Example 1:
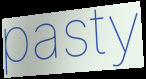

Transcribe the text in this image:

pasty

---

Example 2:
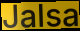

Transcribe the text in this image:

Jalsa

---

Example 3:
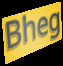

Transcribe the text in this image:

Bheg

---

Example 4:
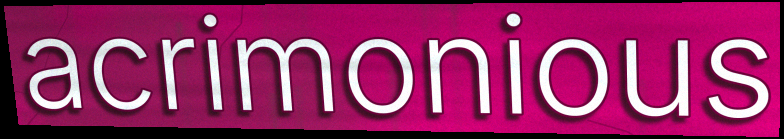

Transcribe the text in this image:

acrimonious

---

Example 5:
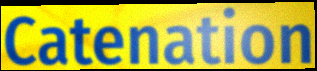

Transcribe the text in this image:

Catenation